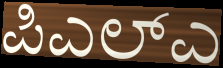
ಪಿಎಲ್ಎ